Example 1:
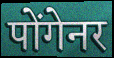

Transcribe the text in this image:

पोंगेनर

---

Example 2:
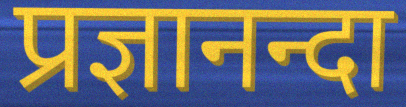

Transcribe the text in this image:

प्रज्ञानन्दा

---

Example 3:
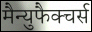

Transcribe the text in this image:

मैन्युफैक्चर्स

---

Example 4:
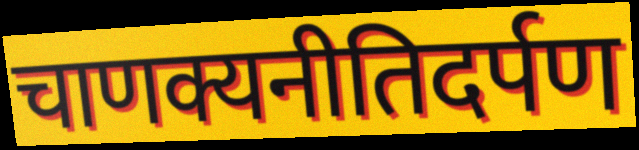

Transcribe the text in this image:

चाणक्यनीतिदर्पण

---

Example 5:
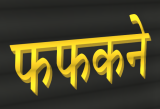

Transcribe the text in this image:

फफकने